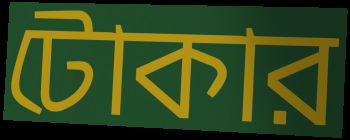
টোকার